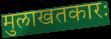
मुलाखतकारः